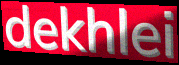
dekhlei